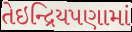
તેઇન્દ્રિયપણામાં